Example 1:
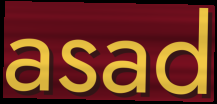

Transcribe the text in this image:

asad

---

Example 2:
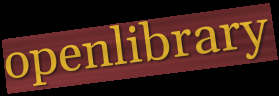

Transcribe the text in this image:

openlibrary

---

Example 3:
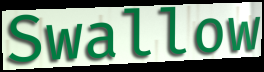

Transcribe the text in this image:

Swallow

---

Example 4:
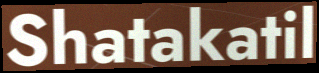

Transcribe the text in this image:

Shatakatil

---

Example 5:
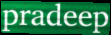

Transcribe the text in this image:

pradeep